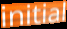
initial